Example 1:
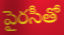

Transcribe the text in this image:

పైరసీతో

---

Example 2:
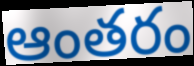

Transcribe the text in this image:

ఆంతరం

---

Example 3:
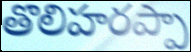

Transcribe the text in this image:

తొలిహరప్పా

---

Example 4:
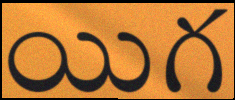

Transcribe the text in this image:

యిగ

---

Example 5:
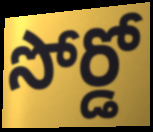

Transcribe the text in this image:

సోర్డో